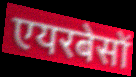
एयरबेसों